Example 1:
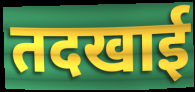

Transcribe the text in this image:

तदखाई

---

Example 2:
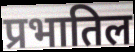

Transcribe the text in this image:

प्रभातिल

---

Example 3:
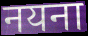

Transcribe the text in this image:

नयना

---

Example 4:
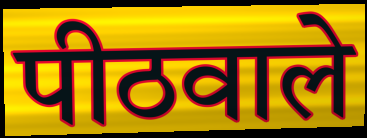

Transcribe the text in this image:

पीठवाले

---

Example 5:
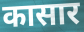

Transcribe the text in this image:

कासार